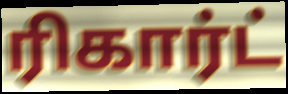
ரிகார்ட்